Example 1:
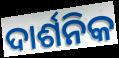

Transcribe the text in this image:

ଦାର୍ଶନିକ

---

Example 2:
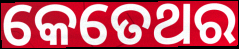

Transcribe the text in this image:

କେତେଥର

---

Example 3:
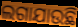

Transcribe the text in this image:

ଲଗାଯାଉଛି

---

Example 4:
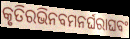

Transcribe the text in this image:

କୃତିରଭିନବମନର୍ଘରାଘବଂ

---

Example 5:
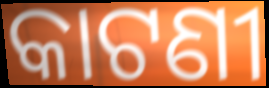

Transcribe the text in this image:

କାଟଣୀ